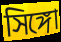
সিঙ্গো